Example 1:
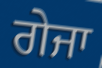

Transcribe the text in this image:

ਗੇਜਾ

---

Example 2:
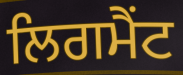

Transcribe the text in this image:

ਲਿਗਮੈਂਟ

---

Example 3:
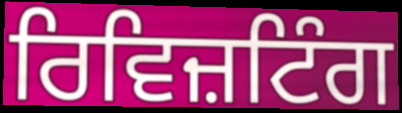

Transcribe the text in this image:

ਰਿਵਿਜ਼ਟਿੰਗ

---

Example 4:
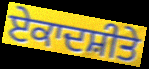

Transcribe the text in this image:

ਏਕਾਦਸ਼ੀਤੇ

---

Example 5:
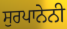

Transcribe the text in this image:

ਸੁਰਪਾਨੇਨੀ